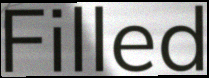
Filled